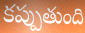
కప్పుతుంది